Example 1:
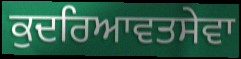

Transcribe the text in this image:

ਕੁਦਰਿਆਵਤਸੇਵਾ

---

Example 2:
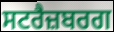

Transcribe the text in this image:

ਸਟਰੈਜ਼ਬਰਗ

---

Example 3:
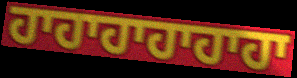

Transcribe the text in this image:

ਹਾਹਾਹਾਹਾਹਾਹਾ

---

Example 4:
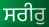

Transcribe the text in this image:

ਸਰੀਰੁ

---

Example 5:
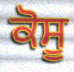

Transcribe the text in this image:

ਕੋਸੂ